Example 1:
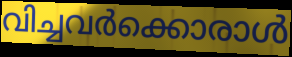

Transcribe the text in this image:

വിച്ചവർക്കൊരാൾ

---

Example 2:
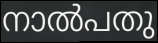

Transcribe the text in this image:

നാൽപതു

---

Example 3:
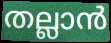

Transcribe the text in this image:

തല്ലാൻ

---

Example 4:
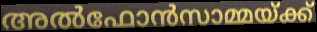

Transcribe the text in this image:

അൽഫോൻസാമ്മയ്ക്ക്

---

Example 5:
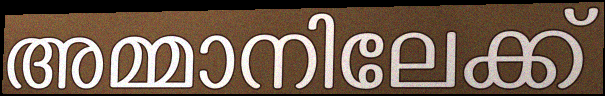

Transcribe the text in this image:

അമ്മാനിലേക്ക്